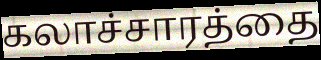
கலாச்சாரத்தை